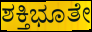
ಶಕ್ತಿಭೂತೇ